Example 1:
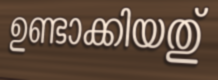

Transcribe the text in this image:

ഉണ്ടാക്കിയതു്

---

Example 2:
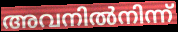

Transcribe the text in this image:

അവനിൽനിന്ന്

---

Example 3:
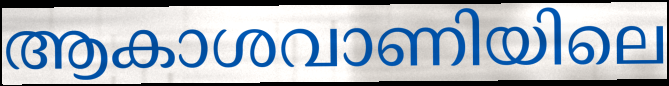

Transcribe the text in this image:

ആകാശവാണിയിലെ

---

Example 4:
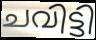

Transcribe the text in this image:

ചവിട്ടി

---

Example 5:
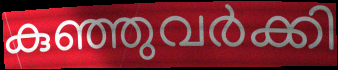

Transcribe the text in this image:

കുഞ്ഞുവർക്കി